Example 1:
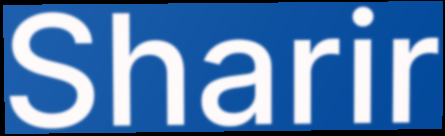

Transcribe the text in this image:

Sharir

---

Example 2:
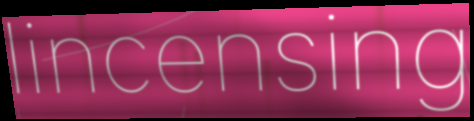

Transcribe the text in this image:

lincensing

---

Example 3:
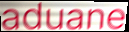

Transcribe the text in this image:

aduane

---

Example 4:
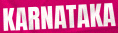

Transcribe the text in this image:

KARNATAKA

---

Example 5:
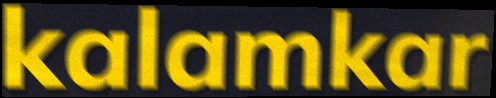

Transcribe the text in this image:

kalamkar